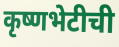
कृष्णभेटीची